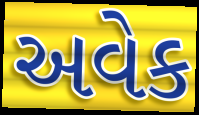
અવેક